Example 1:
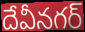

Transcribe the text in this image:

దేవీనగర్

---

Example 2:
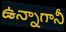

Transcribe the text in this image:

ఉన్నాగానీ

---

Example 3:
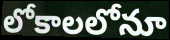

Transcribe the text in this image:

లోకాలలోనూ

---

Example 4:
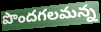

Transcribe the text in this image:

పొందగలమన్న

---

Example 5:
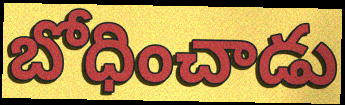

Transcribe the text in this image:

బోధించాడు